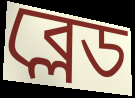
ব্লেড